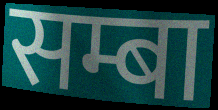
सम्बा